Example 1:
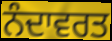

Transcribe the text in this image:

ਨੰਦਾਵਰਤ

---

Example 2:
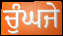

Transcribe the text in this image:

ਚੁੰਘਜੇ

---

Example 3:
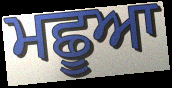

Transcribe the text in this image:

ਮਛੂਆ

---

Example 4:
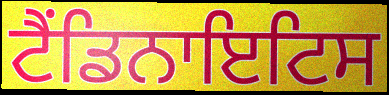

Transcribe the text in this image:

ਟੈਂਡਿਨਾਇਟਿਸ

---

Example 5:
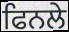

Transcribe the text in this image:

ਫਿਨਲੇ